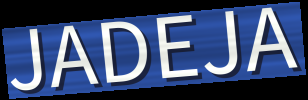
JADEJA